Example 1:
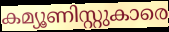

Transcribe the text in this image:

കമ്യൂണിസ്റ്റുകാരെ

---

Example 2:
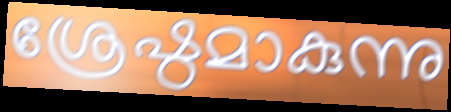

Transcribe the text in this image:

ശ്രേഷ്ഠമാകുന്നു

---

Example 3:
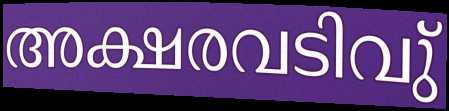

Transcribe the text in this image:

അക്ഷരവടിവു്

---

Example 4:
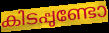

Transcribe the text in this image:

കിടപ്പുണ്ടോ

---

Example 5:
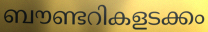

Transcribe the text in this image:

ബൗണ്ടറികളടക്കം